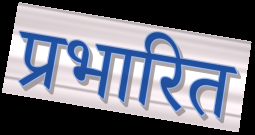
प्रभारित